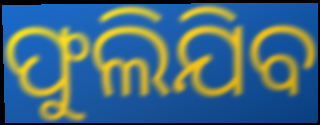
ଫୁଲିଯିବ